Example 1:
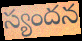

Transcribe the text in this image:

స్యందన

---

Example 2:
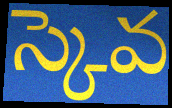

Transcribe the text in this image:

స్కెవ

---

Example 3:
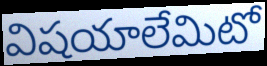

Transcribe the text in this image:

విషయాలేమిటో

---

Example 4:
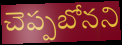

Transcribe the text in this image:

చెప్పబోనని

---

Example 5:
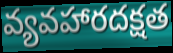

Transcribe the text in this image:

వ్యవహారదక్షత